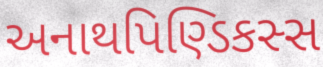
અનાથપિણ્ડિકસ્સ